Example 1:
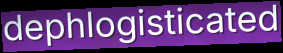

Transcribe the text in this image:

dephlogisticated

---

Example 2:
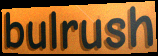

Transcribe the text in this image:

bulrush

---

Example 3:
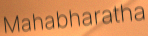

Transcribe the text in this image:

Mahabharatha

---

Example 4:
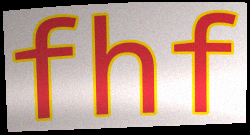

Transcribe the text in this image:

fhf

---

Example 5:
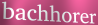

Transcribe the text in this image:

bachhorer